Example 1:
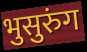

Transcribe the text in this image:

भुसुरुंग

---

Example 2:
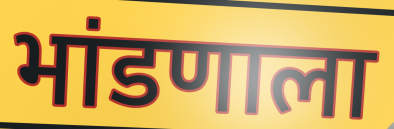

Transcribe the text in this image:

भांडणाला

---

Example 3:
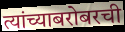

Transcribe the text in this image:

त्यांच्याबरोबरची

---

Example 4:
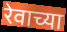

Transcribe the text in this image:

रेवाच्या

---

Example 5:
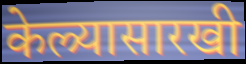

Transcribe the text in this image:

केल्यासारखी